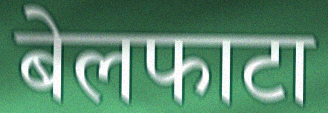
बेलफाटा